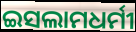
ଇସଲାମଧର୍ମୀ